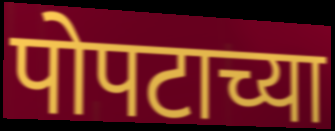
पोपटाच्या